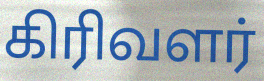
கிரிவளர்